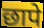
छापे